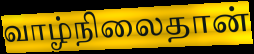
வாழ்நிலைதான்